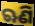
ଋଣି